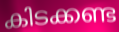
കിടക്കണ്ട